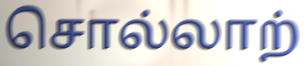
சொல்லாற்